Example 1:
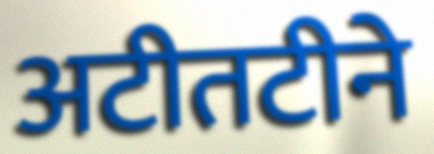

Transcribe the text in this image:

अटीतटीने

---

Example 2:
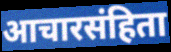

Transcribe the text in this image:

आचारसंहिता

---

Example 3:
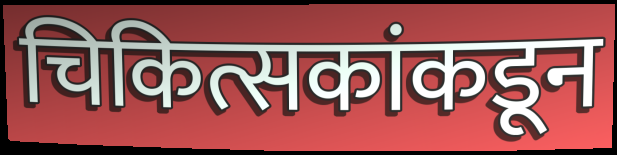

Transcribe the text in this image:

चिकित्सकांकडून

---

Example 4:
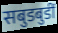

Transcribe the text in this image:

सबुडबुडीं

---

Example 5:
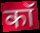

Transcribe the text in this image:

कॉ